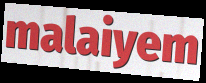
malaiyem